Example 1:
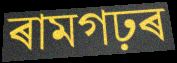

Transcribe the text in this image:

ৰামগঢ়ৰ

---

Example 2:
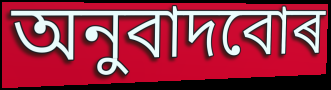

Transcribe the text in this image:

অনুবাদবোৰ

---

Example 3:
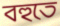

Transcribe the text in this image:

বহুতে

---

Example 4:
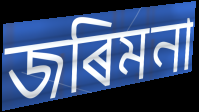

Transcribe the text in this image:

জৰিমনা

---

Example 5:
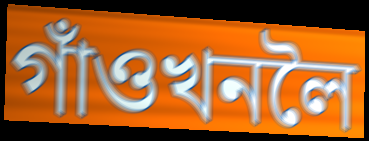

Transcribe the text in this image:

গাঁওখনলৈ